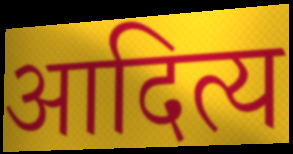
आदित्य